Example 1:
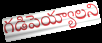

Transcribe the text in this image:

గడిపెయ్యాలని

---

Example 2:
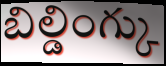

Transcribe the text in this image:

బిల్డింగ్కు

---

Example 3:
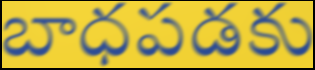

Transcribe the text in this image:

బాధపడకు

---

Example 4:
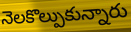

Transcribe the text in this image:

నెలకొల్పుకున్నారు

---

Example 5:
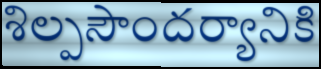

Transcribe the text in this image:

శిల్పసౌందర్యానికి